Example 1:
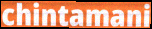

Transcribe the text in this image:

chintamani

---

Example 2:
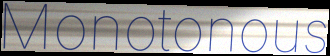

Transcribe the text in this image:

Monotonous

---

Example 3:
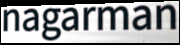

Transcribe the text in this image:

nagarman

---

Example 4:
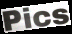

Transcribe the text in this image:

Pics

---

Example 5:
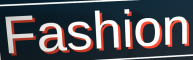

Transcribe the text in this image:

Fashion